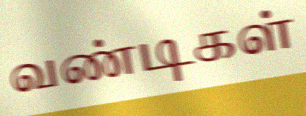
வண்டிகள்